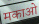
मकाओ